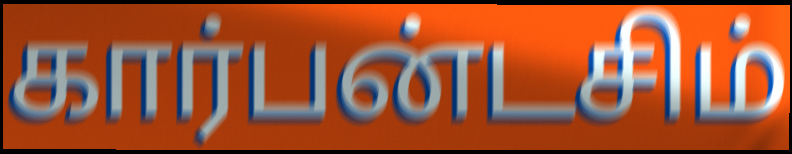
கார்பன்டசிம்